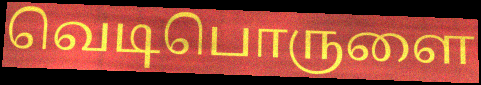
வெடிபொருளை